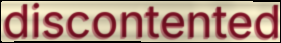
discontented